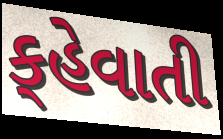
ક્‌હેવાતી